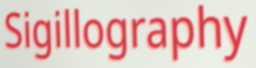
Sigillography